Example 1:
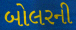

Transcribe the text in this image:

બોલરની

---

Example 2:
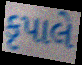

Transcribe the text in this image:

કૃપાલે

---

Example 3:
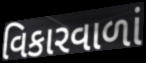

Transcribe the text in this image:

વિકારવાળાં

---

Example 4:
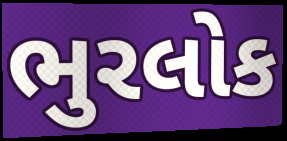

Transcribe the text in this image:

ભુરલોક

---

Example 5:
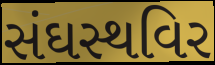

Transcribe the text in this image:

સંઘસ્થવિર